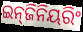
ଇନ୍‍ଜିନିୟରିଂ